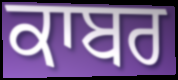
ਕਾਬਰ